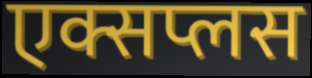
एक्सप्लस